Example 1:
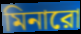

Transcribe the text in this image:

মিনারো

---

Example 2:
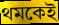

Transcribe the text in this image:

থমকেই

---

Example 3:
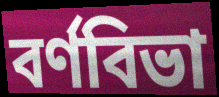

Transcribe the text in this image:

বর্ণবিভা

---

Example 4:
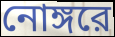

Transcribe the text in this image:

নোঙ্গরে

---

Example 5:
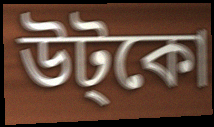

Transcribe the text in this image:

উট্কো